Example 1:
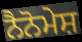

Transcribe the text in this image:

ਨੈਨੋਮੇਸ਼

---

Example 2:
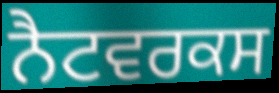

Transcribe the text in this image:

ਨੈਟਵਰਕਸ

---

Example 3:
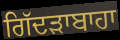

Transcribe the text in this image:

ਗਿੱਦੜਾਬਾਹਾ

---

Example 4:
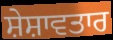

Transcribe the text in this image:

ਸ਼ੇਸ਼ਾਵਤਾਰ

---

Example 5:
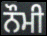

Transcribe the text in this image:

ਨੌਮੀ